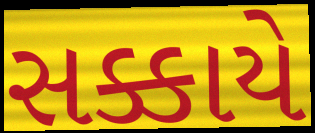
સક્કાયે